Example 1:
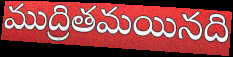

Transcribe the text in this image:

ముద్రితమయినది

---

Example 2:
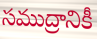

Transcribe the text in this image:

సముద్రానికీ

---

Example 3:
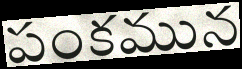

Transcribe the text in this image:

పంకమున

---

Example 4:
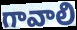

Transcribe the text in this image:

గావాలి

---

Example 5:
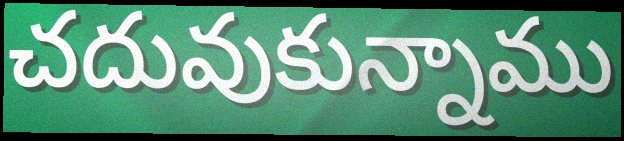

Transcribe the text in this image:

చదువుకున్నాము